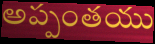
అప్పంతయు